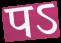
पऽ